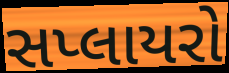
સપ્લાયરો